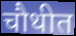
चौथीत